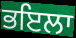
ਭਇਲਾ